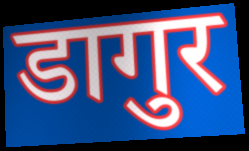
डागुर